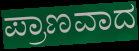
ಪ್ರಾಣವಾದ